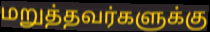
மறுத்தவர்களுக்கு